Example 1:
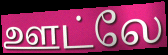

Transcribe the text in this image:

ஊட்லே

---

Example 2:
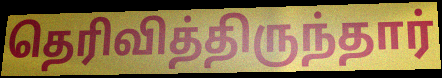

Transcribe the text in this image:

தெரிவித்திருந்தார்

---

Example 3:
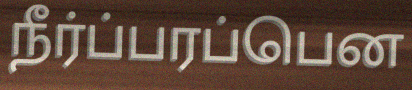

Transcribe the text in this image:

நீர்ப்பரப்பென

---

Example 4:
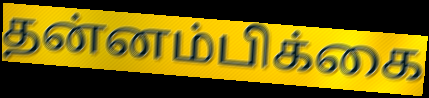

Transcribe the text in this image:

தன்னம்பிக்கை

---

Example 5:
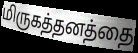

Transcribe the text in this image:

மிருகத்தனத்தை